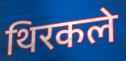
थिरकले